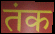
तंक